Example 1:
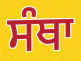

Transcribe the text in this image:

ਸੰਥਾ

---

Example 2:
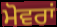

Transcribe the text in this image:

ਮੋਵਰਾਂ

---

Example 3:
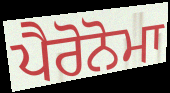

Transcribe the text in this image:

ਪੈਰੋਨੋਮਾ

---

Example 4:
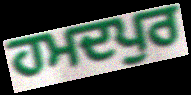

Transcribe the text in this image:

ਹਮਦਪੁਰ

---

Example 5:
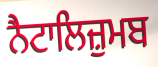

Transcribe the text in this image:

ਨੈਟਾਲਿਜ਼ੁਮਬ